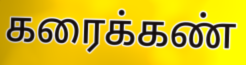
கரைக்கண்